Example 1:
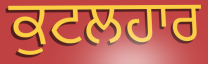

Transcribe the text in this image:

ਕੁਟਲਹਾਰ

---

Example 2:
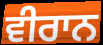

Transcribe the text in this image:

ਵੀਰਾਨ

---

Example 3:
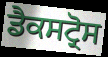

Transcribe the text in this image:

ਡੈਕਸਟ੍ਰੋਸ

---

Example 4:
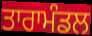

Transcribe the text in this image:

ਤਾਰਾਮੰਡਲ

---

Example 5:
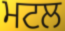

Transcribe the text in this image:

ਮਟਲ